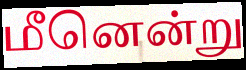
மீனென்று